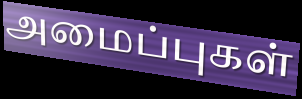
அமைப்புகள்